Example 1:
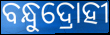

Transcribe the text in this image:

ବନ୍ଧୁଦ୍ରୋହୀ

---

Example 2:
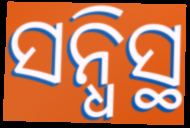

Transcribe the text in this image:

ସନ୍ଧିସ୍ଥ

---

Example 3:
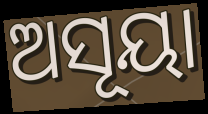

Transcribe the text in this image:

ଅସୂୟା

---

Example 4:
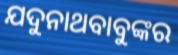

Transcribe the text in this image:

ଯଦୁନାଥବାବୁଙ୍କର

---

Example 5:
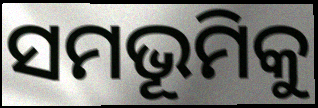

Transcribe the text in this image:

ସମଭୂମିକୁ